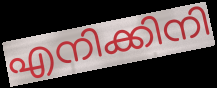
എനിക്കിനി